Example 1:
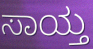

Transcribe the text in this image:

ಸಾಯ್ತ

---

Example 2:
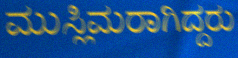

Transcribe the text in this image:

ಮುಸ್ಲಿಮರಾಗಿದ್ದರು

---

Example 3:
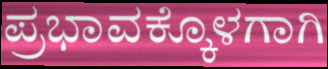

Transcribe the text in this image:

ಪ್ರಭಾವಕ್ಕೊಳಗಾಗಿ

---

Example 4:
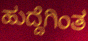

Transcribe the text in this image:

ಹುದ್ದೆಗಿಂತ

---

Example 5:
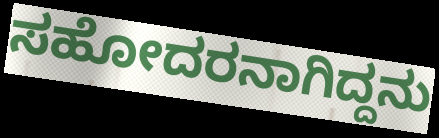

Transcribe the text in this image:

ಸಹೋದರನಾಗಿದ್ದನು